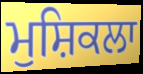
ਮੁਸ਼ਿਕਲਾ